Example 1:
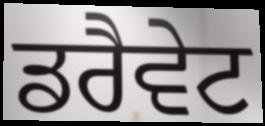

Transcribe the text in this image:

ਡਰੈਵੇਟ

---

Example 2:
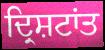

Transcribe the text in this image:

ਦ੍ਰਿਸ਼ਟਾਂਤ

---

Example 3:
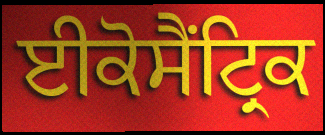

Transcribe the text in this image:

ਈਕੋਸੈਂਟ੍ਰਿਕ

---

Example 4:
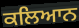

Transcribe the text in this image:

ਕਲਿਆਨ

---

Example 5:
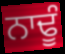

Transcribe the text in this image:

ਨਾਢੂੰ